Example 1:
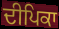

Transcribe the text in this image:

ਦੀਪਿਕਾ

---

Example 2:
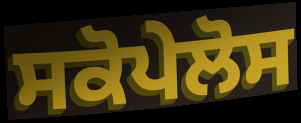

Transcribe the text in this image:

ਸਕੋਪੇਲੋਸ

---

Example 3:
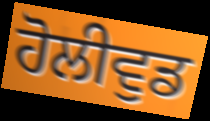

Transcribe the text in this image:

ਹੋਲੀਵੁਡ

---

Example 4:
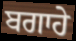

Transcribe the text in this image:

ਬਗਾਹੇ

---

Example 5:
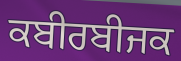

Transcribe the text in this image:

ਕਬੀਰਬੀਜਕ